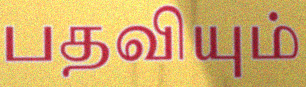
பதவியும்